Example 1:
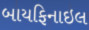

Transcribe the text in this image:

બાયફિનાઇલ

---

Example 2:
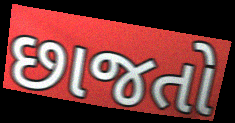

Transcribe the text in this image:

છાજતો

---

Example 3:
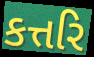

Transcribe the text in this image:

કત્તરિ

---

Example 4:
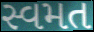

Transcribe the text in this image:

સ્વમત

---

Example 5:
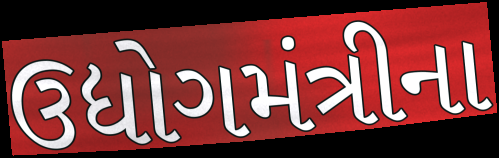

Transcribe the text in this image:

ઉદ્યોગમંત્રીના